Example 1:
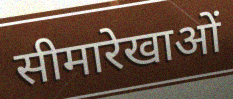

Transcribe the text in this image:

सीमारेखाओं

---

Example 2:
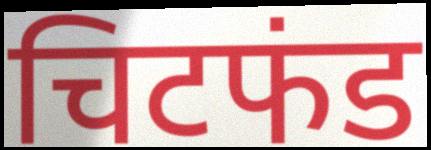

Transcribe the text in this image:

चिटफंड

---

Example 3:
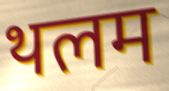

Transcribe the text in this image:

थलम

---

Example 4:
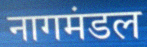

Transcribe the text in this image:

नागमंडल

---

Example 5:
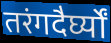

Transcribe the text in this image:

तरंगदैर्घ्यों